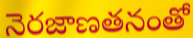
నెరజాణతనంతో